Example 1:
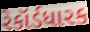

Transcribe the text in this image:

રેકૉર્ડધારક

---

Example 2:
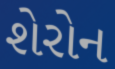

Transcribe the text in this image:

શેરોન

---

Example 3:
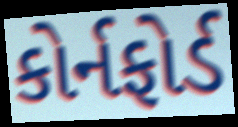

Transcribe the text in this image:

કોર્નફોર્ડ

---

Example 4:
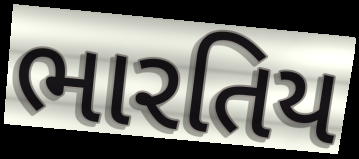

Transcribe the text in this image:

ભારતિય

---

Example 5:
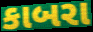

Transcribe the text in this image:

કાબરા